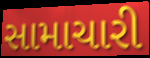
સામાચારી